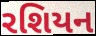
રશિયન